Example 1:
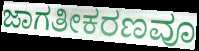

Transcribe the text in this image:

ಜಾಗತೀಕರಣವೂ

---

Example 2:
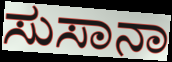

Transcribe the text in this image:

ಸುಸಾನಾ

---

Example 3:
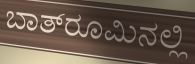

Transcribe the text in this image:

ಬಾತ್‌ರೂಮಿನಲ್ಲಿ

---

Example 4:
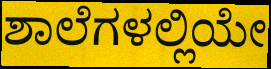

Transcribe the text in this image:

ಶಾಲೆಗಳಲ್ಲಿಯೇ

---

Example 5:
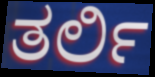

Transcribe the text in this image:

ತರ್ಲಿ